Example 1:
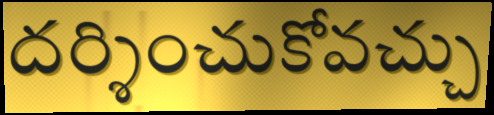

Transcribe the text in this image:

దర్శించుకోవచ్చు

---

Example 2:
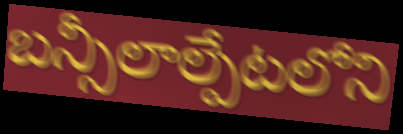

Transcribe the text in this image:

బన్సీలాల్పేటలోని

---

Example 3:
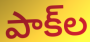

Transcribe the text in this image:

పాక్‌ల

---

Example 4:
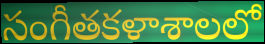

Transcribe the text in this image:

సంగీతకళాశాలలో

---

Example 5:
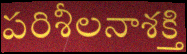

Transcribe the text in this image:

పరిశీలనాశక్తి